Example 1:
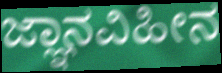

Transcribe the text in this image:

ಜ್ಞಾನವಿಹೀನ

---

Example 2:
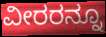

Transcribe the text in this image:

ವೀರರನ್ನೂ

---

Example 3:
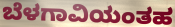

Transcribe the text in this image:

ಬೆಳಗಾವಿಯಂತಹ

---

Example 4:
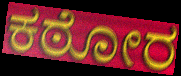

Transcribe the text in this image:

ಕಠೋರ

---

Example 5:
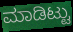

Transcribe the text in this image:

ಮಾಡಿಟ್ಟು